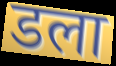
डला